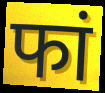
फां